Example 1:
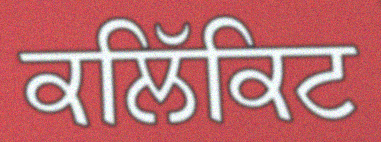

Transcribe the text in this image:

ਕਲਿੱਕਿਟ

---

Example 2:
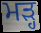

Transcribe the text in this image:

ਮੜ੍ਹ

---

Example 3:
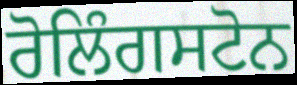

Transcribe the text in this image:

ਰੋਲਿੰਗਸਟੋਨ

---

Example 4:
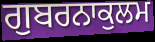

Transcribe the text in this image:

ਗੁਬਰਨਾਕੁਲਮ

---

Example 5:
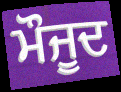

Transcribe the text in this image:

ਮੌਜੂਦ